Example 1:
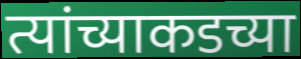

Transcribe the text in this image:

त्यांच्याकडच्या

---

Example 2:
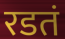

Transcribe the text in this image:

रडतं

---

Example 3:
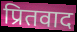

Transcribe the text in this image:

प्रितवाद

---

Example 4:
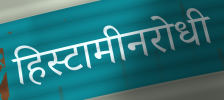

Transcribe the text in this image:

हिस्टामीनरोधी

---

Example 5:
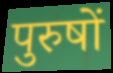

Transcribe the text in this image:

पुरुषों